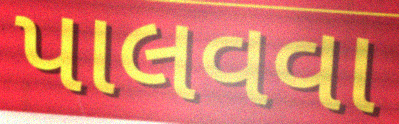
પાલવવા